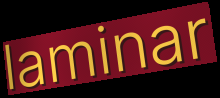
laminar